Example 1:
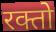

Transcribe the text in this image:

रक्तो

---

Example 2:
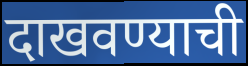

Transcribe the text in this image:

दाखवण्याची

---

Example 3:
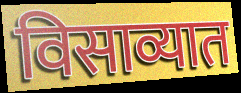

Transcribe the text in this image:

विसाव्यात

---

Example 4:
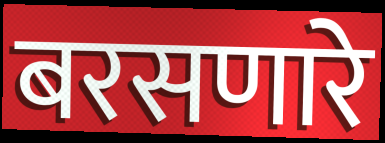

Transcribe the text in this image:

बरसणारे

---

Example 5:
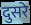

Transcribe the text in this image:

दुसरे